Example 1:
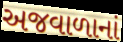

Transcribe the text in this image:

અજવાળાનાં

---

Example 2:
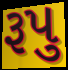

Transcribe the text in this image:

રૂપુ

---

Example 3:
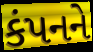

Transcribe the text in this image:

કંપનને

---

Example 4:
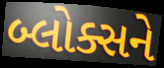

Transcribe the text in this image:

બ્લોક્સને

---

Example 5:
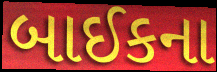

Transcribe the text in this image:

બાઈકના